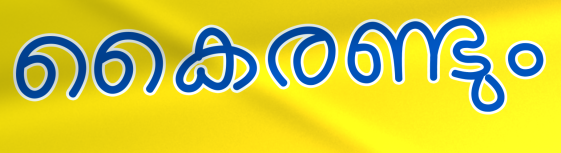
കൈരണ്ടും